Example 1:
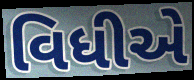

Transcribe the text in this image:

વિધીએ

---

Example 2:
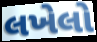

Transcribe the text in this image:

લખેલો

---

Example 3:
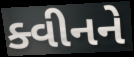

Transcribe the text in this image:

ક્વીનને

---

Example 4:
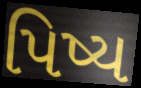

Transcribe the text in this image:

પિષ્ય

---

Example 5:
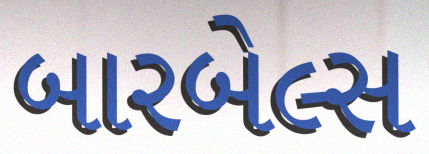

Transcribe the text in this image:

બારબેલ્સ